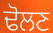
ਢੋਲਣ